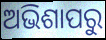
ଅଭିଶାପରୁ